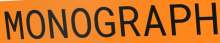
MONOGRAPH